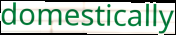
domestically